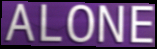
ALONE